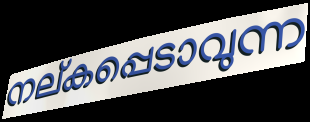
നല്കപ്പെടാവുന്ന